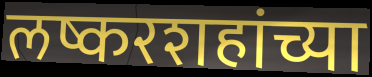
लष्करशहांच्या